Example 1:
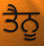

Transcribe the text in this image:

ਤੈਨੂ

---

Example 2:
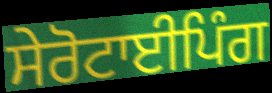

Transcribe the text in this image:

ਸੇਰੋਟਾਈਪਿੰਗ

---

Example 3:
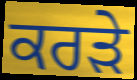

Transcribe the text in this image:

ਕਰੜੇ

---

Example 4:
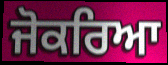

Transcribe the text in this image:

ਜੋਕਰਿਆ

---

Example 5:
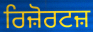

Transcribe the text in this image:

ਰਿਜ਼ੋਰਟਜ਼